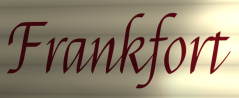
Frankfort